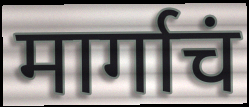
मार्गाचं